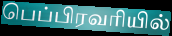
பெப்பிரவரியில்